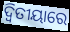
ଦ୍ୱିତୀୟାରେ